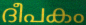
ദീപകം